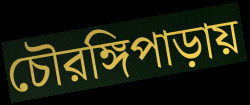
চৌরঙ্গিপাড়ায়